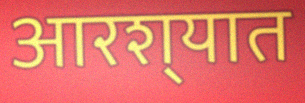
आरश्यात